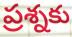
ప్రశ్నకు